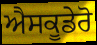
ਐਸਕੂਡੇਰੋ